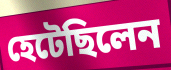
হেটেছিলেন